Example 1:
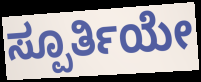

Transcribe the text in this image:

ಸ್ಪೂರ್ತಿಯೇ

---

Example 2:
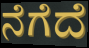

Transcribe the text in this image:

ನೆಗೆದೆ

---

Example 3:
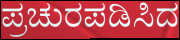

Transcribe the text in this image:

ಪ್ರಚುರಪಡಿಸಿದ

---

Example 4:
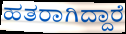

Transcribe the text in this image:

ಹತರಾಗಿದ್ದಾರೆ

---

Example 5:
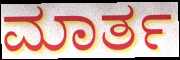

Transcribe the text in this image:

ಮಾರ್ತ